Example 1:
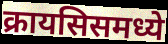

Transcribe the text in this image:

क्रायसिसमध्ये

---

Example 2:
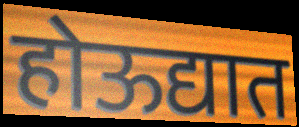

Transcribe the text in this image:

होऊद्यात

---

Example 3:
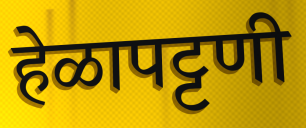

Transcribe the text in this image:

हेळापट्टणी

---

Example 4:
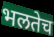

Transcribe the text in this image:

भलतेच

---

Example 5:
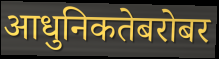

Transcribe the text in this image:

आधुनिकतेबरोबर